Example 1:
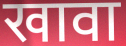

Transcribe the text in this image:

खावा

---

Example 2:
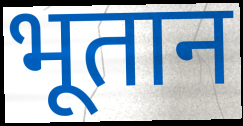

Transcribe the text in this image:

भूतान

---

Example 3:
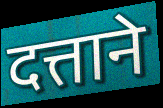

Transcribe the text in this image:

दत्ताने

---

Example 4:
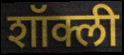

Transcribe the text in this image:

शॉक्ली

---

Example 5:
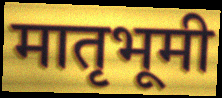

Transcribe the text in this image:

मातृभूमी